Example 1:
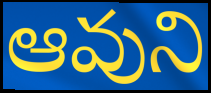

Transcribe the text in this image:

ఆవుని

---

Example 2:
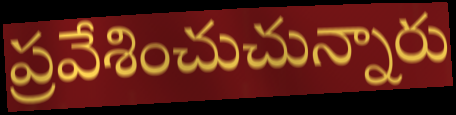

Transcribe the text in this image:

ప్రవేశించుచున్నారు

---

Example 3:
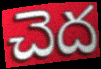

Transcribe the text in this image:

చెద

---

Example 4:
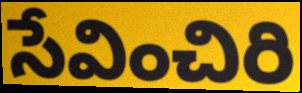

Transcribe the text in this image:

సేవించిరి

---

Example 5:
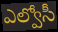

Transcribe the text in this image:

ఎల్వోసీ